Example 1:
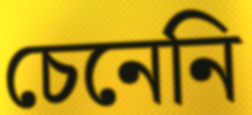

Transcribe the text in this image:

চেনেনি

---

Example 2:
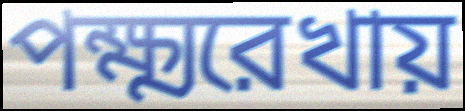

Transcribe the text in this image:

পক্ষ্মরেখায়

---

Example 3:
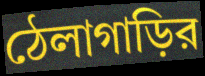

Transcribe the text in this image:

ঠেলাগাড়ির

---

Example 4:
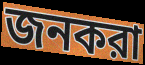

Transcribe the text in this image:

জনকরা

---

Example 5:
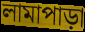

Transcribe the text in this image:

লামাপাড়া